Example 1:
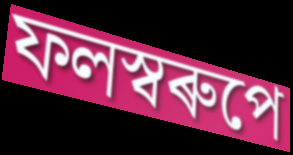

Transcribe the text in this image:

ফলস্বৰুপে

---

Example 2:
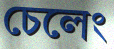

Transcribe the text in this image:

চেলেং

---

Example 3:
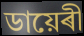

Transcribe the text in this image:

ডায়েৰী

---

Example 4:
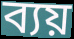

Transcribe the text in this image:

ব্যয়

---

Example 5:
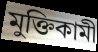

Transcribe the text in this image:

মুক্তিকামী